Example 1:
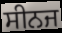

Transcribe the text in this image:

ਸੀਨਜ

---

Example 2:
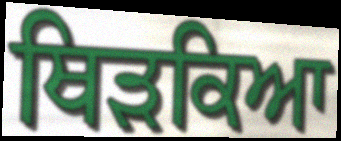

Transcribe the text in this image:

ਥਿੜਕਿਆ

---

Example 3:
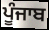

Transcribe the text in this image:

ਪੂੰਜਾਬ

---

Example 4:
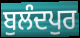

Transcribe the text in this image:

ਬੁਲੰਦਪੁਰ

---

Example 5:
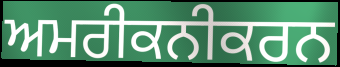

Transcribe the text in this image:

ਅਮਰੀਕਨੀਕਰਨ